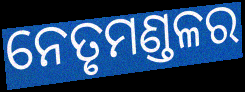
ନେତୃମଣ୍ଡଳର